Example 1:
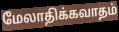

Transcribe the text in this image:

மேலாதிக்கவாதம்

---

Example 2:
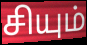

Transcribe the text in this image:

சியும்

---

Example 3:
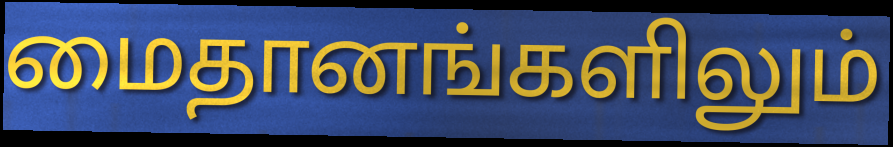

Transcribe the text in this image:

மைதானங்களிலும்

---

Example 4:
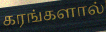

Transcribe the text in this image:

கரங்களால்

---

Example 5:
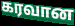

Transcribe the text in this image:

கரவான